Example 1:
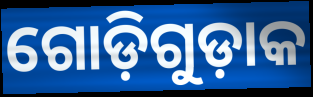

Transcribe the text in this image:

ଗୋଡ଼ିଗୁଡ଼ାକ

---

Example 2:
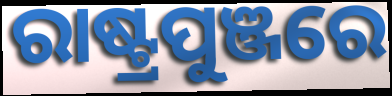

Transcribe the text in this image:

ରାଷ୍ଟ୍ରପୁଞ୍ଜରେ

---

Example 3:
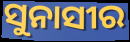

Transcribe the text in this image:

ସୁନାସୀର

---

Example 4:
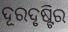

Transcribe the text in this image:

ଦୂରଦୃଷ୍ଟିର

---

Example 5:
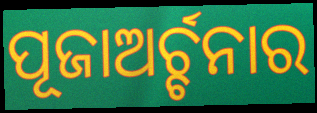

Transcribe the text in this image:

ପୂଜାଅର୍ଚ୍ଚନାର